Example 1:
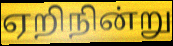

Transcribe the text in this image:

ஏறிநின்று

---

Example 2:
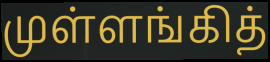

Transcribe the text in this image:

முள்ளங்கித்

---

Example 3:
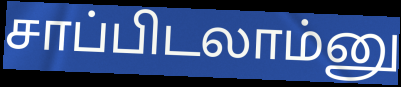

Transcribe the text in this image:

சாப்பிடலாம்னு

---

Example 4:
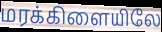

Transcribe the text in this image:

மரக்கிளையிலே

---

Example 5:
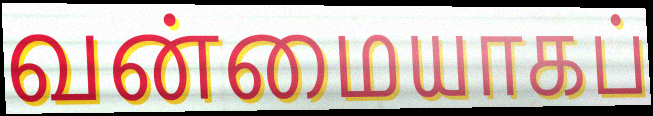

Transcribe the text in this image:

வன்மையாகப்